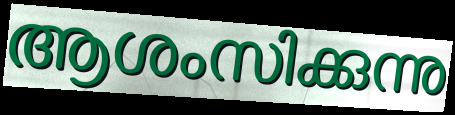
ആശംസിക്കുന്നു